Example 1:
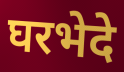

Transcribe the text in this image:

घरभेदे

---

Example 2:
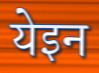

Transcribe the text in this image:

येइन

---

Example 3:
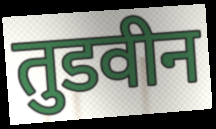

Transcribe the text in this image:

तुडवीन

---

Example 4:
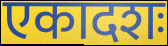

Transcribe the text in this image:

एकादशः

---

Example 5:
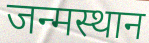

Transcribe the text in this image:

जन्मस्थान